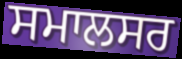
ਸਮਾਲਸਰ